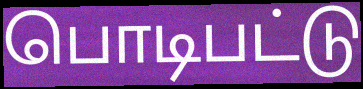
பொடிபட்டு